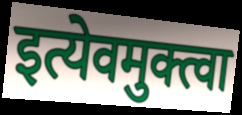
इत्येवमुक्त्वा